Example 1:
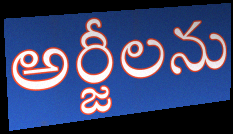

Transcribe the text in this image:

అర్జీలను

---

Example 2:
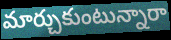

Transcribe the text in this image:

మార్చుకుంటున్నారా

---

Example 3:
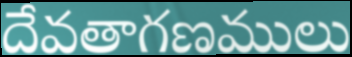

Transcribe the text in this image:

దేవతాగణములు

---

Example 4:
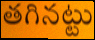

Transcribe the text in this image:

తగినట్టు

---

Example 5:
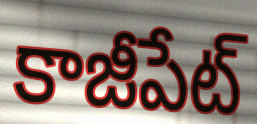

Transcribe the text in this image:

కాజీపేట్